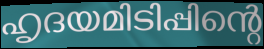
ഹൃദയമിടിപ്പിന്റെ